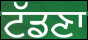
ਟੱਡਣਾ